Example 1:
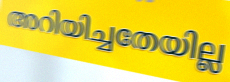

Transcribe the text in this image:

അറിയിച്ചതേയില്ല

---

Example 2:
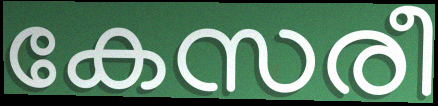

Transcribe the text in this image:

കേസരീ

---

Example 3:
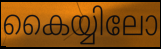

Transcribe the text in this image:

കൈയ്യിലോ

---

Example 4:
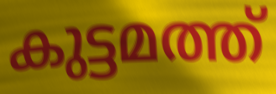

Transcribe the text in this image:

കുട്ടമത്ത്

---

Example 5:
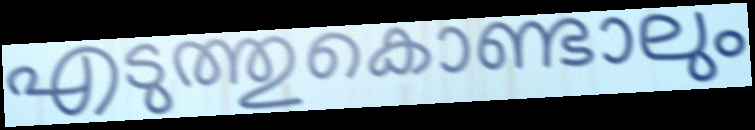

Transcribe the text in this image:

എടുത്തുകൊണ്ടാലും